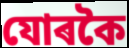
যোৰকৈ